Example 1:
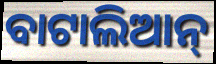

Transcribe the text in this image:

ବାଟାଲିଆନ୍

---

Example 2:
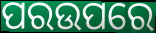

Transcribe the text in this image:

ପରଉପରେ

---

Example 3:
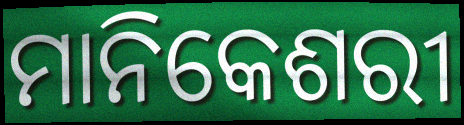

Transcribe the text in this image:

ମାନିକେଶରୀ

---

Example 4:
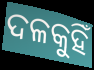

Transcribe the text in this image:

ଦଳକୁହିଁ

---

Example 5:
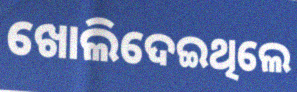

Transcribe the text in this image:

ଖୋଲିଦେଇଥିଲେ